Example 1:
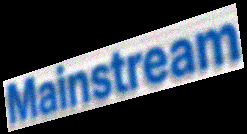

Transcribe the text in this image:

Mainstream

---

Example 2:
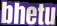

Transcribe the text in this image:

bhetu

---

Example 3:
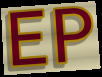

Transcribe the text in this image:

EP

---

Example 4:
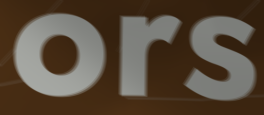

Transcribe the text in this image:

ors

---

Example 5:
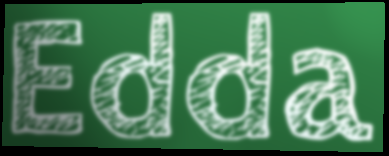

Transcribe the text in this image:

Edda